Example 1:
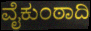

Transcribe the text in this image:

ವೈಕುಂಠಾದಿ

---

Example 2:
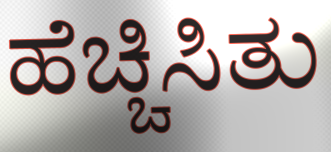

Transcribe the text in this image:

ಹೆಚ್ಚಿಸಿತು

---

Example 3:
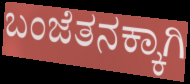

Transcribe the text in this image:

ಬಂಜೆತನಕ್ಕಾಗಿ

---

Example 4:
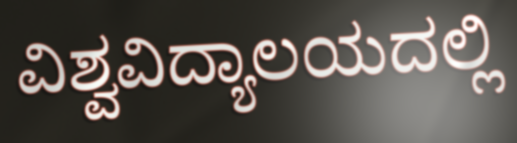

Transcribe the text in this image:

ವಿಶ್ವವಿದ್ಯಾಲಯದಲ್ಲಿ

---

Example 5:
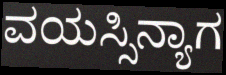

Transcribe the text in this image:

ವಯಸ್ಸಿನ್ಯಾಗ